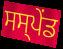
ਸਸ੍ਪੇੰਡ